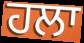
ਹਲਾ